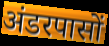
अंडरपासों